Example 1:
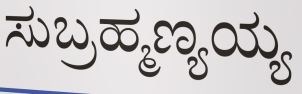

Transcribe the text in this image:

ಸುಬ್ರಹ್ಮಣ್ಯಯ್ಯ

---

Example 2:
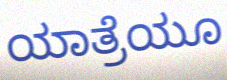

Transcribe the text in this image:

ಯಾತ್ರೆಯೂ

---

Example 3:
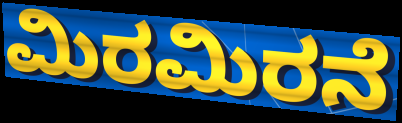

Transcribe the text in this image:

ಮಿರಮಿರನೆ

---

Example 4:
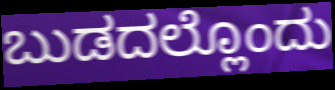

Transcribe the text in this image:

ಬುಡದಲ್ಲೊಂದು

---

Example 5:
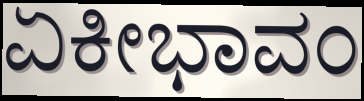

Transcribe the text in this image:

ಏಕೀಭಾವಂ